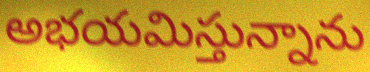
అభయమిస్తున్నాను